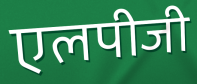
एलपीजी